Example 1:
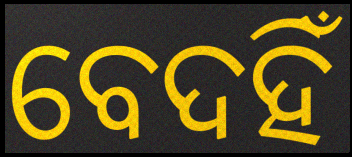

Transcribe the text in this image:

ବେଦହିଁ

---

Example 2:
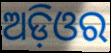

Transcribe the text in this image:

ଅଡ଼ିଓର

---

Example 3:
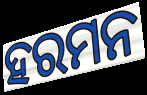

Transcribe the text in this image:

ହରମନ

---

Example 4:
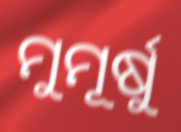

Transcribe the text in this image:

ମୁମୂର୍ଷୁ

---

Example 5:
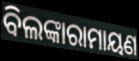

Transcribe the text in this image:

ବିଲଙ୍କାରାମାୟଣ